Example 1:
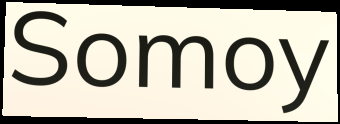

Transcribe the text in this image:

Somoy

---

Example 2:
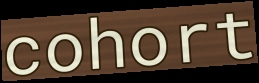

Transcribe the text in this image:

cohort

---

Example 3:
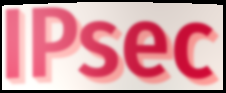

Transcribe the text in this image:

IPsec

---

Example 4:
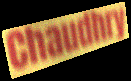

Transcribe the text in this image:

Chaudhry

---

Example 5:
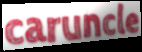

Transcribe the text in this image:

caruncle